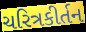
ચરિત્રકીર્તન